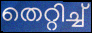
തെറ്റിച്ച്